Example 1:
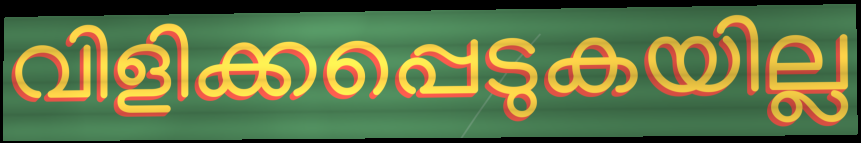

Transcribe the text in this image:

വിളിക്കപ്പെടുകയില്ല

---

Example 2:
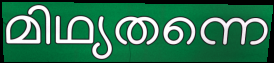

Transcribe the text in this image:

മിഥ്യതന്നെ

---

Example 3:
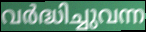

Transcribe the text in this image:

വർദ്ധിച്ചുവന്ന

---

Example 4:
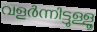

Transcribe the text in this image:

വളർന്നിട്ടുള്ളൂ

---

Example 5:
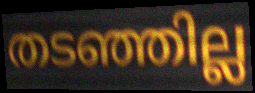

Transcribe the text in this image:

തടഞ്ഞില്ല